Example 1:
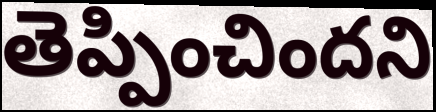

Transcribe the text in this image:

తెప్పించిందని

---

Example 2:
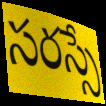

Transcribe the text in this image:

సరస్సే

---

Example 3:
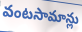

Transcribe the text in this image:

వంటసామాన్లు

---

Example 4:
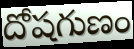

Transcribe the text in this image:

దోషగుణం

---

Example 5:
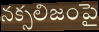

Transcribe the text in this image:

నక్సలిజంపై